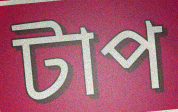
টাপ